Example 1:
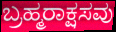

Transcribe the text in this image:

ಬ್ರಹ್ಮರಾಕ್ಷಸವು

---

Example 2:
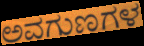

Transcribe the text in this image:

ಅವಗುಣಗಳ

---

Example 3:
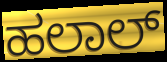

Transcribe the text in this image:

ಹಲಾಲ್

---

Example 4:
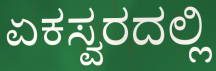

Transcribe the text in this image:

ಏಕಸ್ವರದಲ್ಲಿ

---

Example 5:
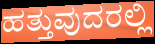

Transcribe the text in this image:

ಹತ್ತುವುದರಲ್ಲಿ